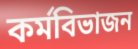
কর্মবিভাজন